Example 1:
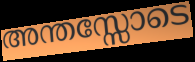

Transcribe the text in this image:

അന്തസ്സോടെ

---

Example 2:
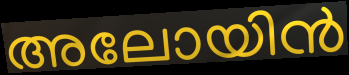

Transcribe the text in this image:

അലോയിൻ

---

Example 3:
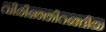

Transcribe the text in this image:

വിരിഞ്ഞിറങ്ങിയ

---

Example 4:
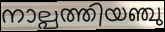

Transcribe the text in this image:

നാല്പത്തിയഞ്ചു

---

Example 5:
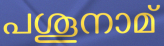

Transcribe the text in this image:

പശൂനാമ്